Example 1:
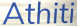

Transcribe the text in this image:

Athiti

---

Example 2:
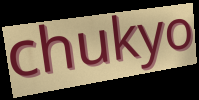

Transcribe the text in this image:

chukyo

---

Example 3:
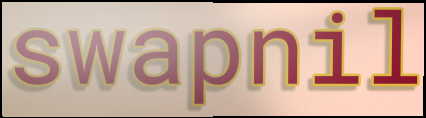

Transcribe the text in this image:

swapnil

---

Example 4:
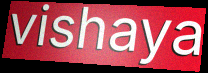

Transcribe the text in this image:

vishaya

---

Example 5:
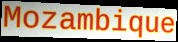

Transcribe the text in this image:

Mozambique